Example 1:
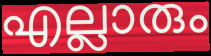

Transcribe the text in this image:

എല്ലാരും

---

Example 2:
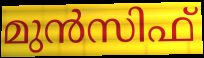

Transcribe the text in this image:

മുൻസിഫ്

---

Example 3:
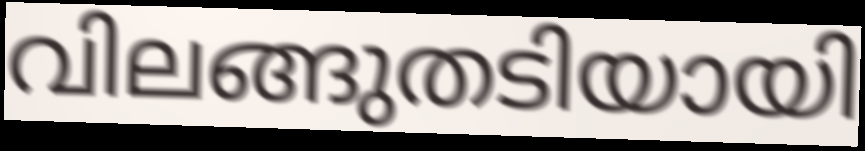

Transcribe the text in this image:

വിലങ്ങുതടിയായി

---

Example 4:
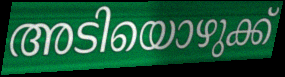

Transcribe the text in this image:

അടിയൊഴുക്ക്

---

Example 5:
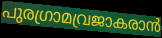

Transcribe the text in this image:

പുരഗ്രാമവ്രജാകരാൻ